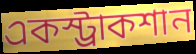
একস্ট্রাকশান